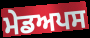
ਮੇਡਅਪਸ